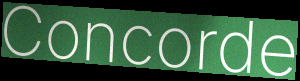
Concorde